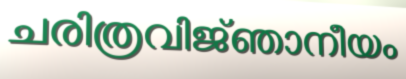
ചരിത്രവിജ്‌ഞാനീയം